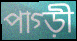
পাগ্ড়ী